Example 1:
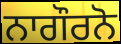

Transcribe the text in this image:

ਨਾਗੌਰਨੋ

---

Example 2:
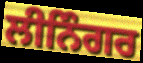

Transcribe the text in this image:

ਲੀਨਿੰਗਰ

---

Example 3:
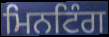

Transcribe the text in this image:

ਮਿਨਟਿੰਗ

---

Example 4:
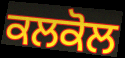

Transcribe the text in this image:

ਕਲਕੋਲ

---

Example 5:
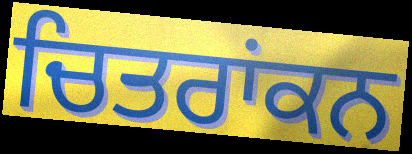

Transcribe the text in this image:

ਚਿਤਰਾਂਕਨ